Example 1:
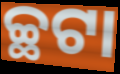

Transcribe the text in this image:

ଚ୍ଛଟା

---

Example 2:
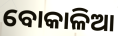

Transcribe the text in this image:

ବୋକାଳିଆ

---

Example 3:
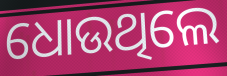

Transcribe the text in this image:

ଧୋଉଥିଲେ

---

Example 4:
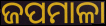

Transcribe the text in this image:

ଜପମାଳା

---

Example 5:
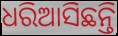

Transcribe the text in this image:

ଧରିଆସିଛନ୍ତି